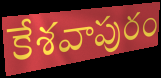
కేశవాపురం